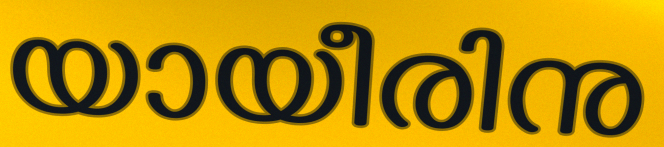
യായീരിനു